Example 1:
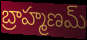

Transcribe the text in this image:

బ్రాహ్మణమ్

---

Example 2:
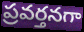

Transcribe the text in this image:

ప్రవర్తనగా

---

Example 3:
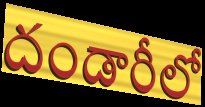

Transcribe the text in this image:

దండారీలో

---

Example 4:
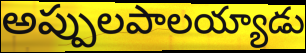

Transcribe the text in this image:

అప్పులపాలయ్యాడు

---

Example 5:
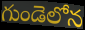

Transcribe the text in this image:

గుండెలోన